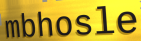
mbhosle